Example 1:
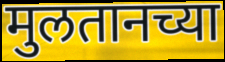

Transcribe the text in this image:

मुलतानच्या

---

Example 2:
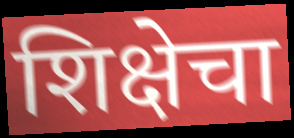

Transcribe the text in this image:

शिक्षेचा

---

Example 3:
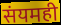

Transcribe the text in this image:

संयमही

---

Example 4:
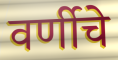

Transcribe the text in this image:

वर्णीचे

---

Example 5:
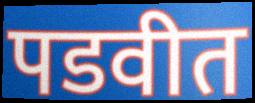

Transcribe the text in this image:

पडवीत